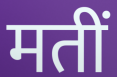
मतीं